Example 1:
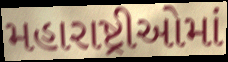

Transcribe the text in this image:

મહારાષ્ટ્રીઓમાં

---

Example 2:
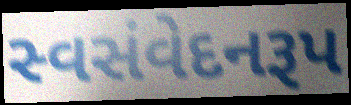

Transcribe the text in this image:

સ્વસંવેદનરૂપ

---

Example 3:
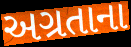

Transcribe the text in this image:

અગ્રતાના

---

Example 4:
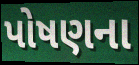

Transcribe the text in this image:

પોષણના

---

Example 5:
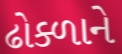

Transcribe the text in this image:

ઢોક્ળાને